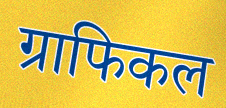
ग्राफिकल